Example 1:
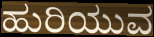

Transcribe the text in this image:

ಹುರಿಯುವ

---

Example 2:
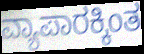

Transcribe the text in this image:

ವ್ಯಾಪಾರಕ್ಕಿಂತ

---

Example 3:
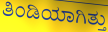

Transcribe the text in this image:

ತಿಂಡಿಯಾಗಿತ್ತು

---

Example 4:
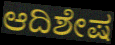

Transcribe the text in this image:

ಆದಿಶೇಷ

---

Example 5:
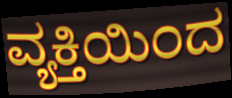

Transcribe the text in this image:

ವ್ಯಕ್ತಿಯಿಂದ